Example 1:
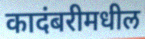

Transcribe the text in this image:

कादंबरीमधील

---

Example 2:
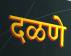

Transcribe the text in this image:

दळणे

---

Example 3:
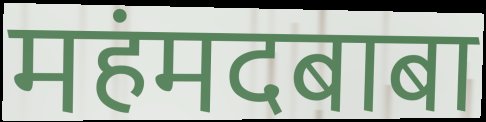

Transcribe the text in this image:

महंमदबाबा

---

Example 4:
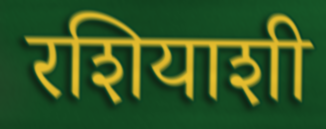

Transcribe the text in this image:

रशियाशी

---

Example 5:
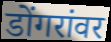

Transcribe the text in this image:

डोंगरांवर